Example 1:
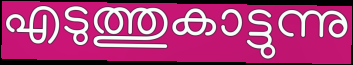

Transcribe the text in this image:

എടുത്തുകാട്ടുന്നു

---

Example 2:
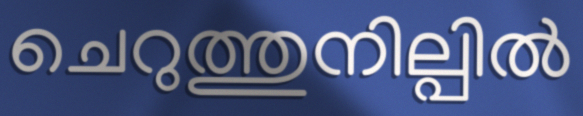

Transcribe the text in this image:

ചെറുത്തുനില്പിൽ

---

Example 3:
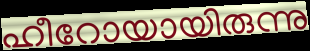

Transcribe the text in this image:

ഹീറോയായിരുന്നു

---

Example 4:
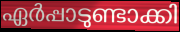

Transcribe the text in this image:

ഏർപ്പാടുണ്ടാക്കി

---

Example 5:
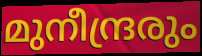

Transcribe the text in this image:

മുനീന്ദ്രരും